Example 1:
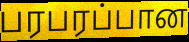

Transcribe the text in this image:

பரபரப்பான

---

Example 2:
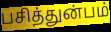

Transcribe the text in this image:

பசித்துன்பம்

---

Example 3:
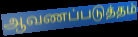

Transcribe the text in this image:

ஆவணப்படுத்தம்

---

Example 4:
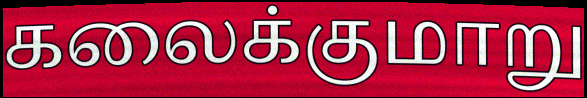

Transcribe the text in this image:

கலைக்குமாறு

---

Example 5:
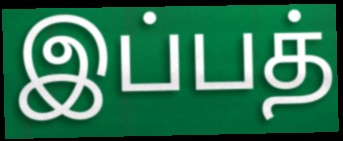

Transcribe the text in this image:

இப்பத்